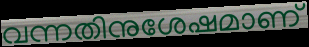
വന്നതിനുശേഷമാണ്